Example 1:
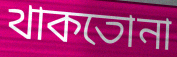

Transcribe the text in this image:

থাকতোনা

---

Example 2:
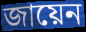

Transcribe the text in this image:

জায়েন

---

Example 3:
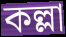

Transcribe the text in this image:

কল্লা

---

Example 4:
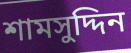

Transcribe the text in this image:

শামসুদ্দিন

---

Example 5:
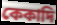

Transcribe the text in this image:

কেকাদি